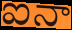
ఐనా